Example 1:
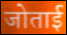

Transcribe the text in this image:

जोताई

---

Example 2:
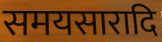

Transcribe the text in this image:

समयसारादि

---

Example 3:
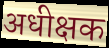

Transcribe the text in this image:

अधीक्षक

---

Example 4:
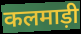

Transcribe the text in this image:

कलमाड़ी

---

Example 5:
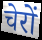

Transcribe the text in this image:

चेरों